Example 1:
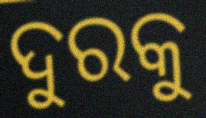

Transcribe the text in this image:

ଦୁରକୁ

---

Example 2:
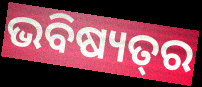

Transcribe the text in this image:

ଭବିଷ୍ୟତ୍‌ର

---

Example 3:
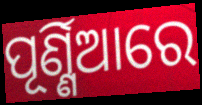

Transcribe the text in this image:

ପୂର୍ଣ୍ଣିଆରେ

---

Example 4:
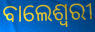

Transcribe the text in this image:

ବାଲେଶ୍ଵରୀ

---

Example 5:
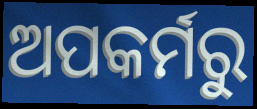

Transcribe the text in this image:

ଅପକର୍ମରୁ